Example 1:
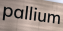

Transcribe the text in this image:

pallium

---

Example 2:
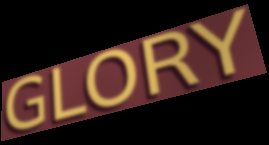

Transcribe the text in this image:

GLORY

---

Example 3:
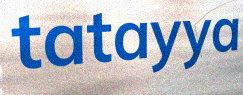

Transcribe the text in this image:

tatayya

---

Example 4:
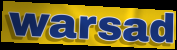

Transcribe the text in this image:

warsad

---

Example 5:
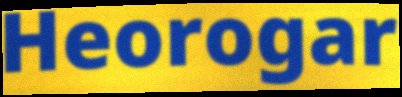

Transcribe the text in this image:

Heorogar